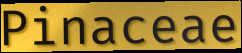
Pinaceae